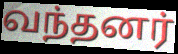
வந்தனர்